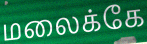
மலைக்கே